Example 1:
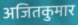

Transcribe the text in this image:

अजितकुमार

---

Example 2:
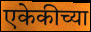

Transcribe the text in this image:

एकेकीच्या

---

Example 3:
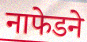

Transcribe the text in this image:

नाफेडने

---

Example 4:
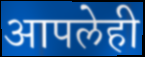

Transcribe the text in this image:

आपलेही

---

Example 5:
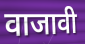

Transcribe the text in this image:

वाजावी